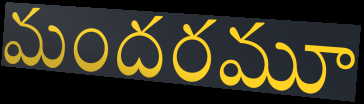
మందరమూ